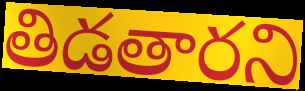
తిడతారని